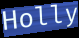
Holly